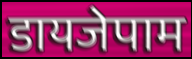
डायजेपाम